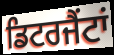
ਡਿਟਰਜੈਂਟਾਂ